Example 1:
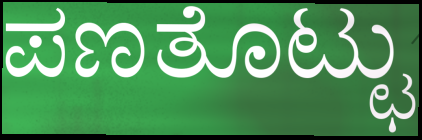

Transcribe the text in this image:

ಪಣತೊಟ್ಟು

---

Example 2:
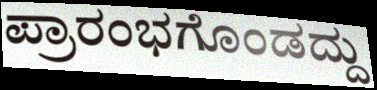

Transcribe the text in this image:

ಪ್ರಾರಂಭಗೊಂಡದ್ದು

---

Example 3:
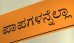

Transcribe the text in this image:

ಪಾಪಗಳನ್ನೆಲ್ಲಾ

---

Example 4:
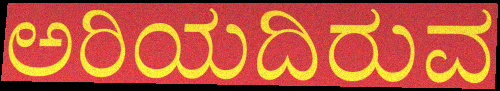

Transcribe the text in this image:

ಅರಿಯದಿರುವ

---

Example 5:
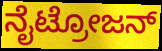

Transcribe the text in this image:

ನೈಟ್ರೋಜನ್